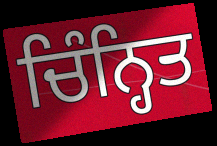
ਚਿੰਨ੍ਹਿਤ